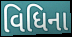
વિધિના